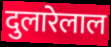
दुलारेलाल